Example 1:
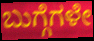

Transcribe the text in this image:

ಬುಗ್ಗೆಗಳೇ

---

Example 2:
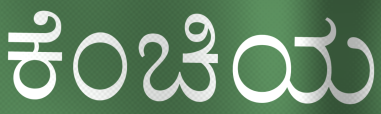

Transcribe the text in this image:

ಕೆಂಚಿಯ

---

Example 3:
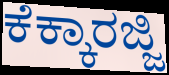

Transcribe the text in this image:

ಕೆಕ್ಕಾರಜ್ಜಿ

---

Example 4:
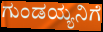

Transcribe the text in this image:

ಗುಂಡಯ್ಯನಿಗೆ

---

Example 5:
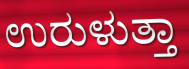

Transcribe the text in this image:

ಉರುಳುತ್ತಾ